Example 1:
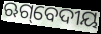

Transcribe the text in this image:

ଋଗ୍‌ବେଦୀୟ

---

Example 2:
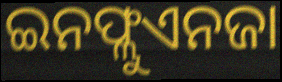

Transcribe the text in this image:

ଇନଫ୍ଲୁଏନଜା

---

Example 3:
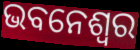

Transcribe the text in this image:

ଭବନେଶ୍ୱର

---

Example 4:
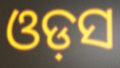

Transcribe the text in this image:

ଓଡ଼ସ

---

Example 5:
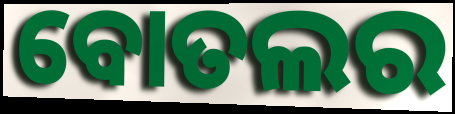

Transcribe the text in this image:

ବୋତଲର